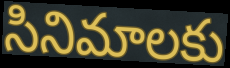
సినిమాలకు